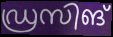
ഡ്രസിങ്